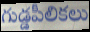
గుడ్డపీలికలు